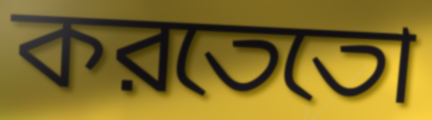
করতেতো